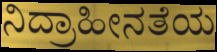
ನಿದ್ರಾಹೀನತೆಯ